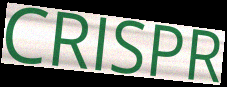
CRISPR